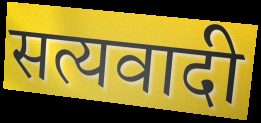
सत्यवादी